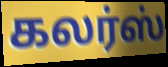
கலர்ஸ்